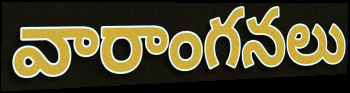
వారాంగనలు